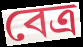
বেত্র